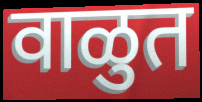
वाळुत